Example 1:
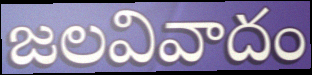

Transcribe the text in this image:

జలవివాదం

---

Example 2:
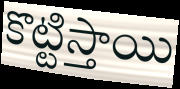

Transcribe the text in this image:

కొట్టిస్తాయి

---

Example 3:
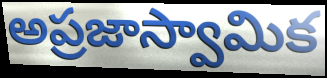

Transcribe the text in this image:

అప్రజాస్వామిక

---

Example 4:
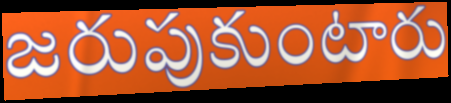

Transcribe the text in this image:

జరుపుకుంటారు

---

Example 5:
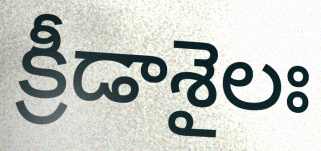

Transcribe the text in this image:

క్రీడాశైలః